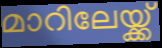
മാറിലേയ്ക്ക്